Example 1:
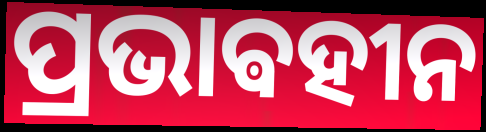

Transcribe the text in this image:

ପ୍ରଭାଵହୀନ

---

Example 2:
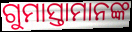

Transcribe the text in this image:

ଗୁମାସ୍ତାମାନଙ୍କ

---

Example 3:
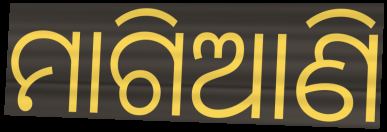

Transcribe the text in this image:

ମାଗିଆଣି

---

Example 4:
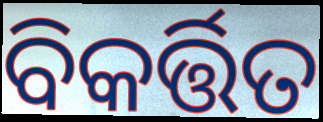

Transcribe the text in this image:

ବିକର୍ତ୍ତିତ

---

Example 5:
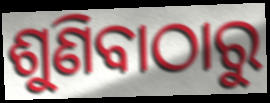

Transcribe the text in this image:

ଶୁଣିବାଠାରୁ